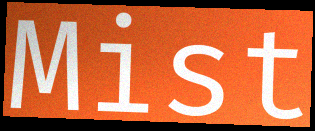
Mist